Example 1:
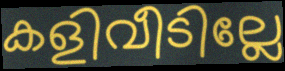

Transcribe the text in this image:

കളിവീടില്ലേ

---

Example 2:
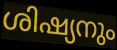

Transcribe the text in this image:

ശിഷ്യനും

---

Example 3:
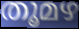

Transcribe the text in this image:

തൂമഴ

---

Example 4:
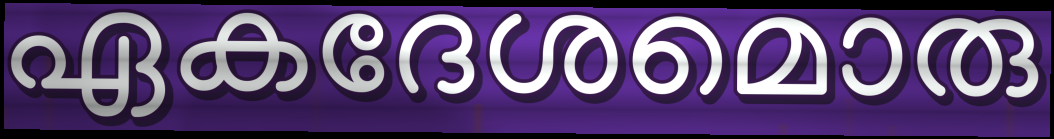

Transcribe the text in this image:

ഏകദേശമൊരു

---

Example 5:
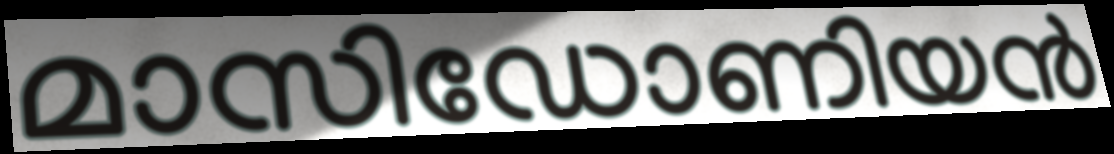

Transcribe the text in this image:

മാസിഡോണിയൻ